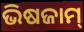
ଭିଷଜାମ୍